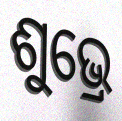
ଶୁଭ୍ରେ